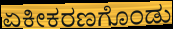
ಏಕೀಕರಣಗೊಂಡು